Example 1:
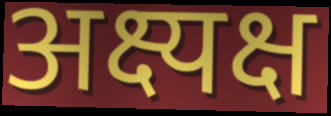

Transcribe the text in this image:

अक्ष्यक्ष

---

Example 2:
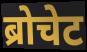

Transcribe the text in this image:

ब्रोचेट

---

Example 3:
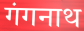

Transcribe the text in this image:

गंगनाथ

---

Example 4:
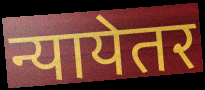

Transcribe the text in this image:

न्यायेतर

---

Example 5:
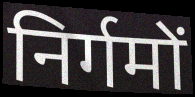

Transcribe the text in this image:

निर्गमों